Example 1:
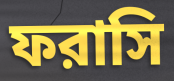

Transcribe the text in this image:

ফরাসি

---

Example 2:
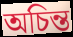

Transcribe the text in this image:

অচিন্ত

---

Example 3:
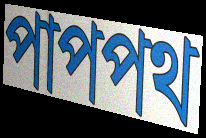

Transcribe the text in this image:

পাপপথ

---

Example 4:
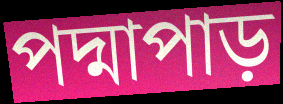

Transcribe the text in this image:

পদ্মাপাড়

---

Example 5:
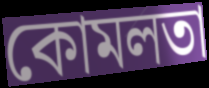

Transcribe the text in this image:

কোমলতা